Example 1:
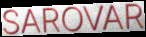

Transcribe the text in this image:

SAROVAR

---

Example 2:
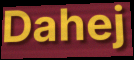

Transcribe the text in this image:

Dahej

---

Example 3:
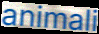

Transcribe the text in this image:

animali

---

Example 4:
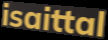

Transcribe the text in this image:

isaittal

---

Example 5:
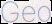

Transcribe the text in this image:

Geo